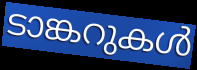
ടാങ്കറുകൾ